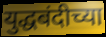
युद्धबंदीच्या